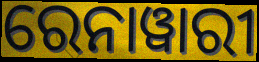
ରେନାୱାରୀ